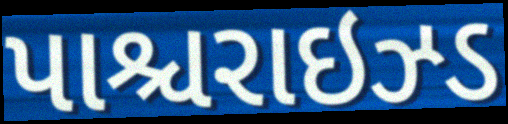
પાશ્ચરાઇઝ્ડ